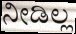
ನೀಡಿಲ್ಲ